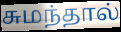
சுமந்தால்